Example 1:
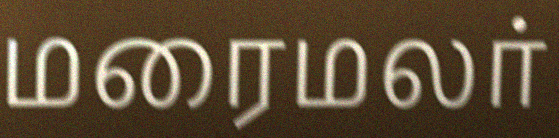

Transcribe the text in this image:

மரைமலர்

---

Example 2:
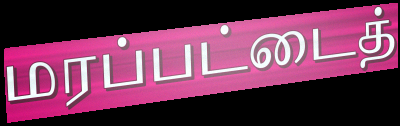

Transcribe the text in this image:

மரப்பட்டைத்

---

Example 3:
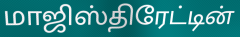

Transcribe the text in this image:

மாஜிஸ்திரேட்டின்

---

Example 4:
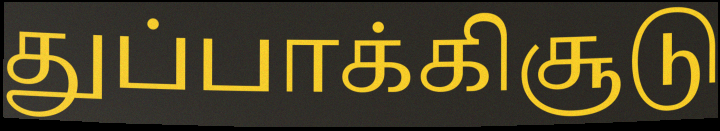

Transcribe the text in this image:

துப்பாக்கிசூடு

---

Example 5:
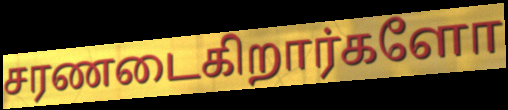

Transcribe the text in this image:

சரணடைகிறார்களோ